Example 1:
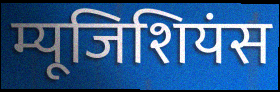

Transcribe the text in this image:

म्यूजिशियंस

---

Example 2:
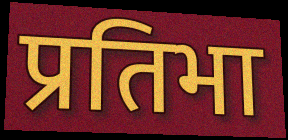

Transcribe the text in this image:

प्रतिभा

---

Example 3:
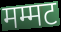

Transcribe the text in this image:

मम्मट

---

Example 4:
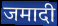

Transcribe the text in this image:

जमादी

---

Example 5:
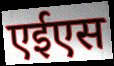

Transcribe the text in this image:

एईएस